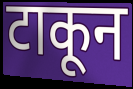
टाकून